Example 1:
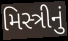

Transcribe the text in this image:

મિસ્ત્રીનું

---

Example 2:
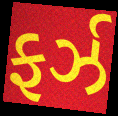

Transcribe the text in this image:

ફર્ઝ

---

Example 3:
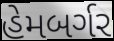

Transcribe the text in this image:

હેમબર્ગર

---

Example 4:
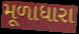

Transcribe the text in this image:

મૂળાધારા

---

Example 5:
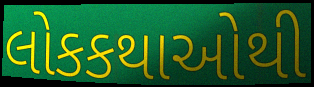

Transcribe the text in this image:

લોકકથાઓથી